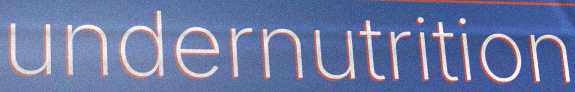
undernutrition